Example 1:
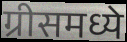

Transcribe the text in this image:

ग्रीसमध्ये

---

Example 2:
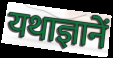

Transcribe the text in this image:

यथाज्ञानें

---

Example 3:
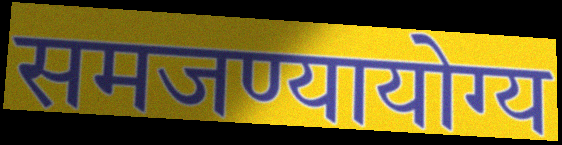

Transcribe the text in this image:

समजण्यायोग्य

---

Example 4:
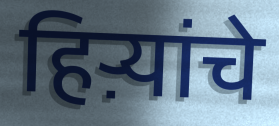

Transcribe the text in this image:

हिऱ्‍यांचे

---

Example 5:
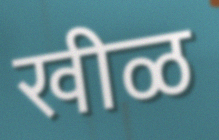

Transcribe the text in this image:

खीळ